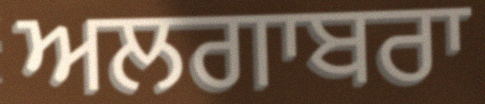
ਅਲਗਾਬਰਾ